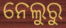
ନେଲୁରୁ